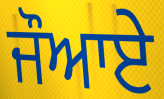
ਜੌਆਏ